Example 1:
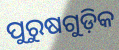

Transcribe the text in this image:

ପୁରୁଷଗୁଡ଼ିକ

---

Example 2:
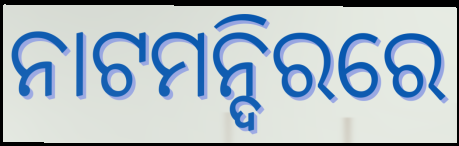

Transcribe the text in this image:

ନାଟମନ୍ଦିରରେ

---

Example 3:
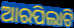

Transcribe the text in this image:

ଆରପିଲାଟି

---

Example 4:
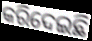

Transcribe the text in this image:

କରିଦେଇଛି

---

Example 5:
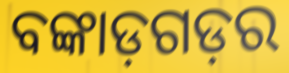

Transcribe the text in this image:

ବଙ୍କାଡ଼ଗଡ଼ର